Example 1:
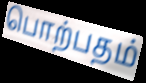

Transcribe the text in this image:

பொற்பதம்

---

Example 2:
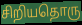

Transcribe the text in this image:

சிறியதொரு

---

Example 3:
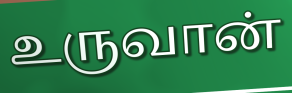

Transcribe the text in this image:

உருவான்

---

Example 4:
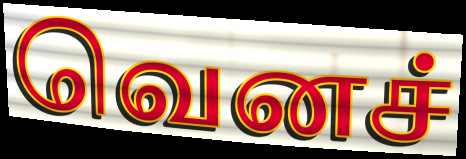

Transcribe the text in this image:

வெனச்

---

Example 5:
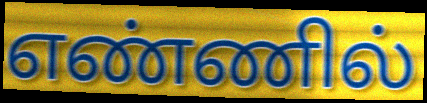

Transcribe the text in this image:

எண்ணில்